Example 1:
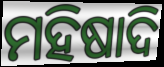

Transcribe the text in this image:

ମହିଷାଦି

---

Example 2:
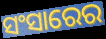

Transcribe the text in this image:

ସଂସାରେର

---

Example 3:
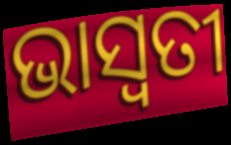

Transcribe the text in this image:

ଭାସ୍ଵତୀ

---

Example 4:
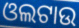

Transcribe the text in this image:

ଓଲଟାଉ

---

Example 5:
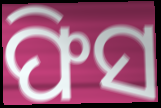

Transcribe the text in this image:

ଫିସ